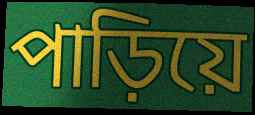
পাড়িয়ে